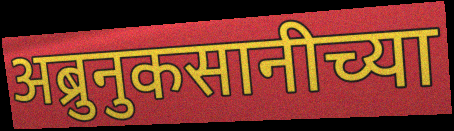
अब्रुनुकसानीच्या